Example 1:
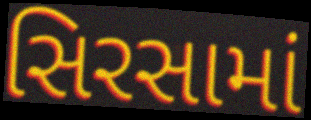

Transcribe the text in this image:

સિરસામાં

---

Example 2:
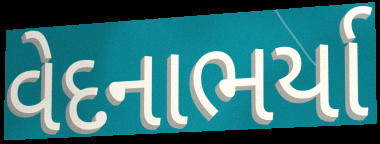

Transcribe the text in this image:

વેદનાભર્યા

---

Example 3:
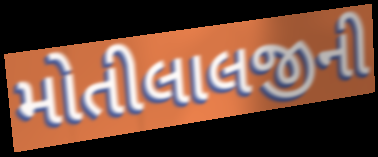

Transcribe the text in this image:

મોતીલાલજીની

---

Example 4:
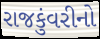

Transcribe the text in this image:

રાજકુંવરીનો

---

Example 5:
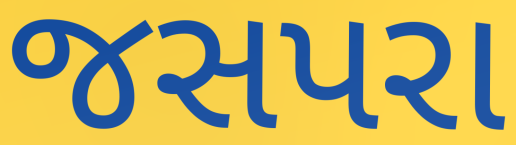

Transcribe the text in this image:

જસપરા